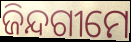
ଜିନ୍ଦଗୀମେ